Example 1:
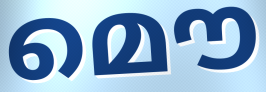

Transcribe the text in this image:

മൌ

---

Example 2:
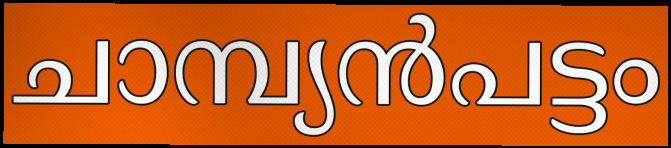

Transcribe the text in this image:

ചാമ്പ്യൻപട്ടം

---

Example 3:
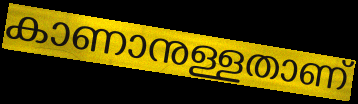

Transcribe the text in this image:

കാണാനുള്ളതാണ്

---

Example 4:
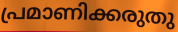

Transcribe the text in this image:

പ്രമാണിക്കരുതു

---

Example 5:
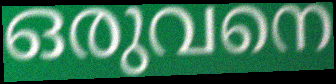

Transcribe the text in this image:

ഒരുവനെ